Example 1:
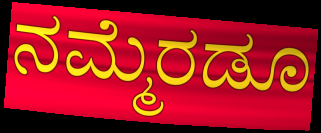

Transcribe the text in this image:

ನಮ್ಮೆರಡೂ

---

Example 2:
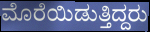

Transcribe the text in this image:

ಮೊರೆಯಿಡುತ್ತಿದ್ದರು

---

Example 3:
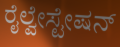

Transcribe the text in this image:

ರೈಲ್ವೇಸ್ಟೇಷನ್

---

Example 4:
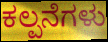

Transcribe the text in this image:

ಕಲ್ಪನೆಗಳು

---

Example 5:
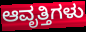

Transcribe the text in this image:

ಆವೃತ್ತಿಗಳು